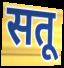
सतू